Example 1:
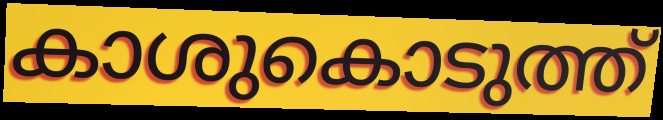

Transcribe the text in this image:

കാശുകൊടുത്ത്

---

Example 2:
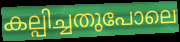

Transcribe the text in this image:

കല്പിച്ചതുപോലെ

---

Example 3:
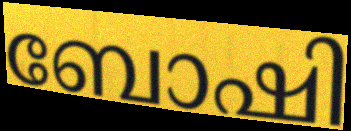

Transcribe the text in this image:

ബോഷി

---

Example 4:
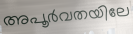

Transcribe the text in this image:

അപൂർവതയിലേ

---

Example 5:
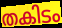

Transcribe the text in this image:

തകിടം